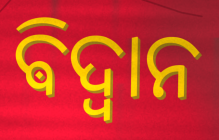
ଵିଦ୍ଵାନ